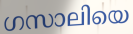
ഗസാലിയെ